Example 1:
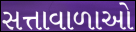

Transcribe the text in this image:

સત્તાવાળાઓ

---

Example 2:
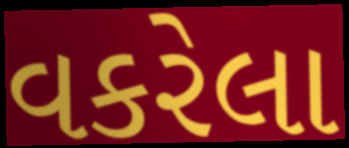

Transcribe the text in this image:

વકરેલા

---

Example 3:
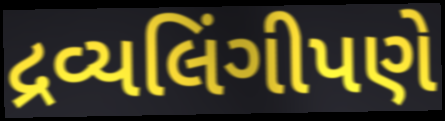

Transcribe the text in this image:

દ્રવ્યલિંગીપણે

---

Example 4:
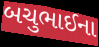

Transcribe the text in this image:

બચુભાઈના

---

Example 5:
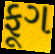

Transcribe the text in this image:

ફૂગ